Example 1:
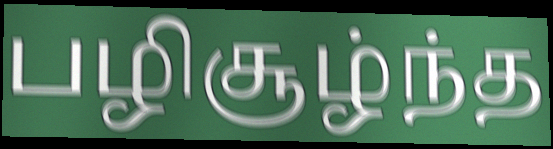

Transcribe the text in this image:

பழிசூழ்ந்த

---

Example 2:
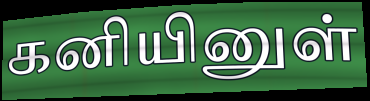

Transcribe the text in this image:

கனியினுள்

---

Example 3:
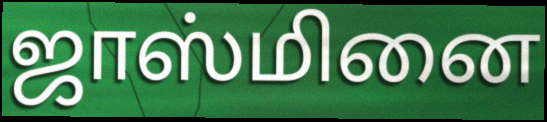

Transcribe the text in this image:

ஜாஸ்மினை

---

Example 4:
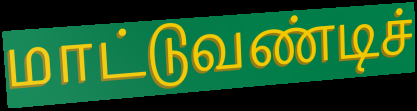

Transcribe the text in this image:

மாட்டுவண்டிச்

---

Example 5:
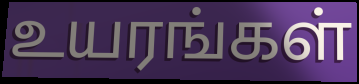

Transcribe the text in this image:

உயரங்கள்